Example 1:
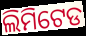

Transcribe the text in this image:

ଲିମିଟେଡ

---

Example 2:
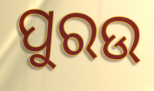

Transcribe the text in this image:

ପୁରଉ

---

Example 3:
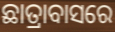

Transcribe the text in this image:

ଛାତ୍ରାବାସରେ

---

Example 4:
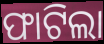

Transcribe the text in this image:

ଫାଟିଲା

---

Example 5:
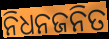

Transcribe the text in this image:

ନିଧନଜନିତ